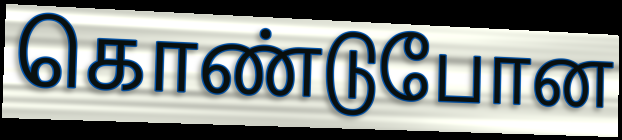
கொண்டுபோன